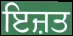
ਇਜ਼ਤ